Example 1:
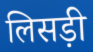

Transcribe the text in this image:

लिसड़ी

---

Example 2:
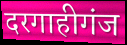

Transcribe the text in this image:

दरगाहीगंज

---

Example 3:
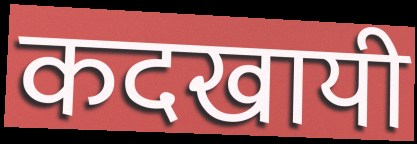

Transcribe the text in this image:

कदखायी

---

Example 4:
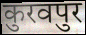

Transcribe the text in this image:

कुरवपुर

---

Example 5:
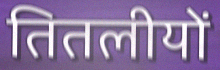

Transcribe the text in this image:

तितलीयों